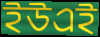
ইউএই